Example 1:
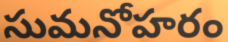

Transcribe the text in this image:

సుమనోహరం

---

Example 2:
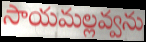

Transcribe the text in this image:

సాయమల్లవ్వను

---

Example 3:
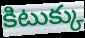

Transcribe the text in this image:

కిటుక్కు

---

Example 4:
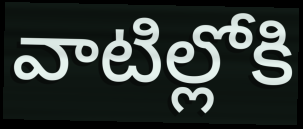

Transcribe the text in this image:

వాటిల్లోకి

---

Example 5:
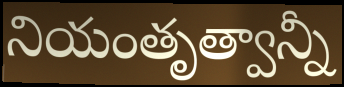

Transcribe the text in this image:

నియంతృత్వాన్నీ